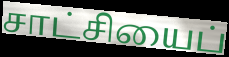
சாட்சியைப்